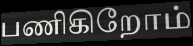
பணிகிறோம்